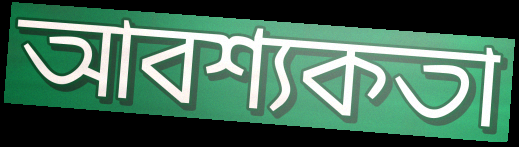
আবশ্যকতা